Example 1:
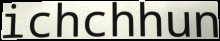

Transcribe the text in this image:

ichchhun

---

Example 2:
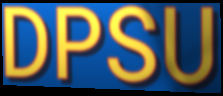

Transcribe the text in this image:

DPSU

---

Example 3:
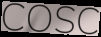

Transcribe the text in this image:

COSC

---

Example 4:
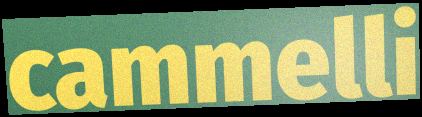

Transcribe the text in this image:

cammelli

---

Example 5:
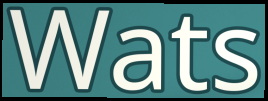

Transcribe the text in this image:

Wats